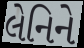
લેનિને